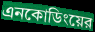
এনকোডিংয়ের